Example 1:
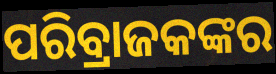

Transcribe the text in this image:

ପରିବ୍ରାଜକଙ୍କର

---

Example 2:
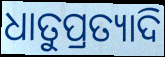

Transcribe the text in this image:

ଧାତୁପ୍ରତ୍ୟାଦି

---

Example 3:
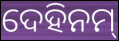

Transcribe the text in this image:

ଦେହିନମ୍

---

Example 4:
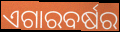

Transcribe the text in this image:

ଏଗାରବର୍ଷର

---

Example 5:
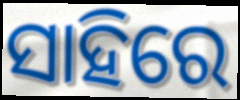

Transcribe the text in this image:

ସାହିରେ